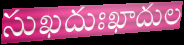
సుఖదుఃఖాదుల